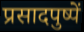
प्रसादपुष्पें